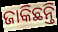
ଜାକିଛନ୍ତି